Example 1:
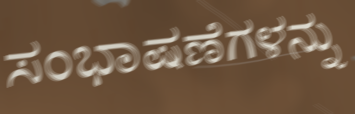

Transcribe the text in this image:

ಸಂಭಾಷಣೆಗಳನ್ನು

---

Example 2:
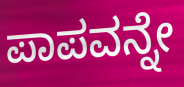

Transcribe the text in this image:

ಪಾಪವನ್ನೇ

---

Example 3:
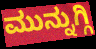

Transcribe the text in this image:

ಮುನ್ನುಗ್ಗಿ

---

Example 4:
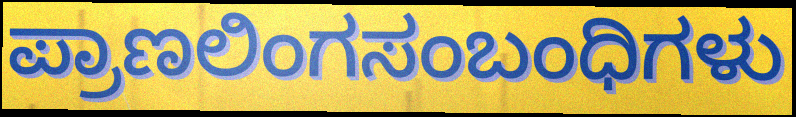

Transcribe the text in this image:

ಪ್ರಾಣಲಿಂಗಸಂಬಂಧಿಗಳು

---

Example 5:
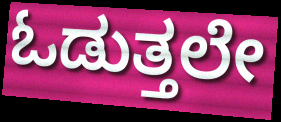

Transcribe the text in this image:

ಓಡುತ್ತಲೇ